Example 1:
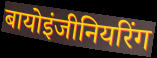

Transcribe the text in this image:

बायोइंजीनियरिंग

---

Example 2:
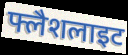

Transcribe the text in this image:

फ्लैशलाइट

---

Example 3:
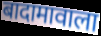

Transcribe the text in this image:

बादामावाला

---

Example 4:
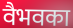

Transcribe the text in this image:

वैभवका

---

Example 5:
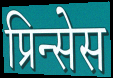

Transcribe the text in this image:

प्रिन्सेस